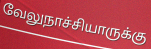
வேலுநாச்சியாருக்கு